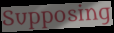
Supposing